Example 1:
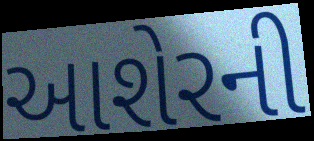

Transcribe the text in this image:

આશેરની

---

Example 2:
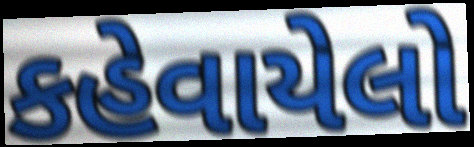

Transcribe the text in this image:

કહેવાયેલો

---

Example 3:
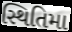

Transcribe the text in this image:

સ્થિતિમા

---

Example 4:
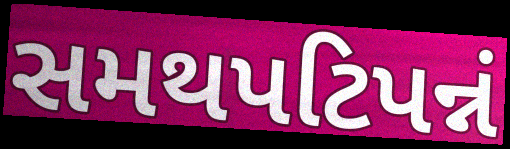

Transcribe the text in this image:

સમથપટિપન્નં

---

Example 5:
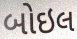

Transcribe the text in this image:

બોઇલ